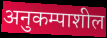
अनुकम्पाशील